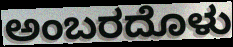
ಅಂಬರದೊಳು